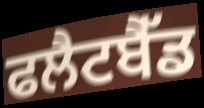
ਫਲੈਟਬੈੱਡ